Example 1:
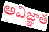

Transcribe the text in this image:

అవిజ్ఞాత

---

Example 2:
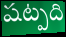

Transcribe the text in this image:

షట్పది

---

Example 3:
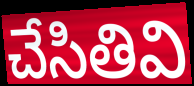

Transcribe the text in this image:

చేసితివి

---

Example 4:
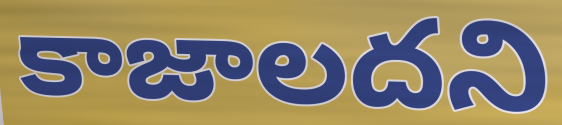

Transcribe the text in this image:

కాజాలదని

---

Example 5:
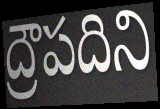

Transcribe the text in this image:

ద్రౌపదిని